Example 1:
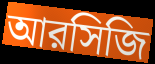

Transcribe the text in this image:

আরসিজি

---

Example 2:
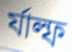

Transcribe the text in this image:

র্যাল্ফ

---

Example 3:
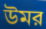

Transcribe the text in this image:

উমর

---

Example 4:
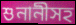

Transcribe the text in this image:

শুনানীসহ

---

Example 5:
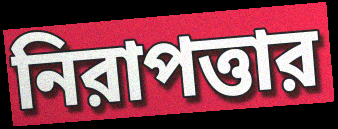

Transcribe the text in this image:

নিরাপত্তার